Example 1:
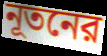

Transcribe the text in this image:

নূতনের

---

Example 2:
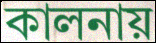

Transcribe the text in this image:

কালনায়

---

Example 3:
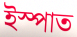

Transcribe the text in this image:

ইস্পাত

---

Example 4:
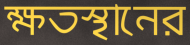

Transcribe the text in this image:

ক্ষতস্থানের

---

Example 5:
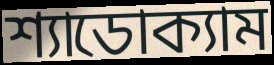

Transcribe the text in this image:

শ্যাডোক্যাম